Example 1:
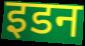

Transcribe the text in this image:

इडन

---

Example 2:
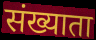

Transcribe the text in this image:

संख्याता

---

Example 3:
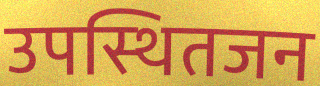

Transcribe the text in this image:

उपस्थितजन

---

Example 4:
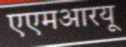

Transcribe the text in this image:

एएमआरयू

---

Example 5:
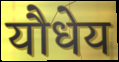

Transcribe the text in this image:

यौधेय